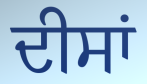
ਦੀਸਾਂ